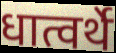
धात्वर्थे